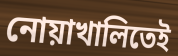
নোয়াখালিতেই